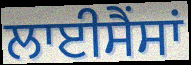
ਲਾਈਸੈਂਸਾਂ